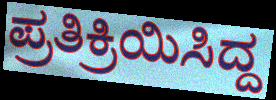
ಪ್ರತಿಕ್ರಿಯಿಸಿದ್ದ